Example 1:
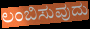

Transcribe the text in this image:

ಲಂಬಿಸುವುದು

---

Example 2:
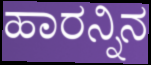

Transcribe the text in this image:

ಹಾರನ್ನಿನ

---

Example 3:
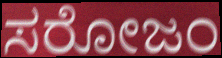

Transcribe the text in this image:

ಸರೋಜಂ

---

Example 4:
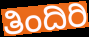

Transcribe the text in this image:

ತಿಂದಿರಿ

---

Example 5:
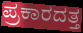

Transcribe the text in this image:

ಪ್ರಕಾರದತ್ತ